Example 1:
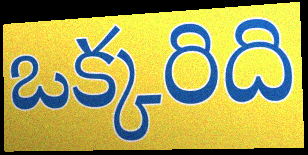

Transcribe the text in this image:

ఒక్కరిది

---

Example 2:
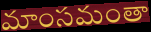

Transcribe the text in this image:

మాంసమంతా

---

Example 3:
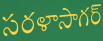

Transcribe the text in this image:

సరళాసాగర్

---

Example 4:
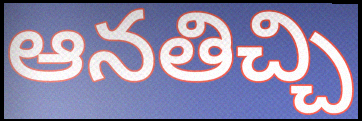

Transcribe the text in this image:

ఆనతిచ్చి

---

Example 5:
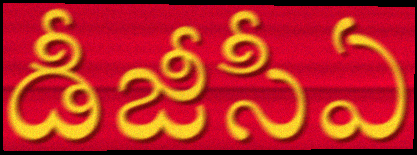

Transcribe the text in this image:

డీజీసీఏ